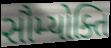
સૌમ્યોક્તિ